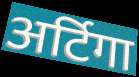
अर्टिगा